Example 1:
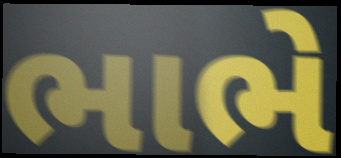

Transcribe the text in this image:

ભાભે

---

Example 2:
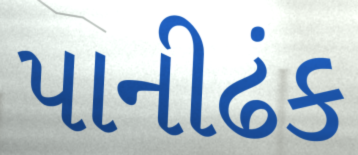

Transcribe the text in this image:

પાનીઢંક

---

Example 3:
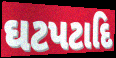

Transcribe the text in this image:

ઘટપટાદિ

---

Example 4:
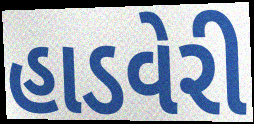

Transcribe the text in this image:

હાડવેરી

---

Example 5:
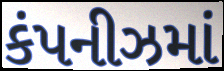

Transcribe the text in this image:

કંપનીઝમાં